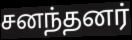
சனந்தனர்